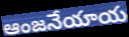
ఆంజనేయాయ